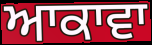
ਆਕਾਵਾ